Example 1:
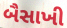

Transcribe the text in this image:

બૈસાખી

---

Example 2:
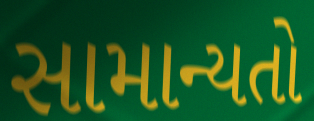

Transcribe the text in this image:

સામાન્યતો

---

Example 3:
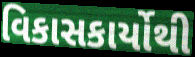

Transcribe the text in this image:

વિકાસકાર્યોથી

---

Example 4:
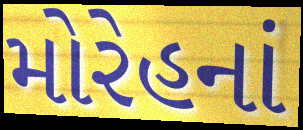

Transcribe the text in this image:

મોરેહનાં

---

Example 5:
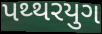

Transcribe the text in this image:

પથ્થરયુગ